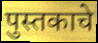
पुस्तकाचे